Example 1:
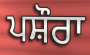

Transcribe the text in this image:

ਪਸ਼ੌਰਾ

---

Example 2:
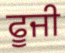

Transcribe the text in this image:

ਫੂਜੀ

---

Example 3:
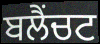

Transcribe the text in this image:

ਬਲੈਂਚਟ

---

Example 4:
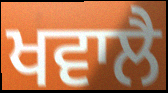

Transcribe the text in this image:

ਖਵਾਲੈ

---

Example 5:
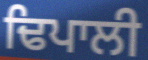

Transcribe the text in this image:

ਢਿਪਾਲੀ